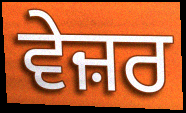
ਵੇਜ਼ਰ